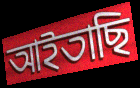
আইতাছি